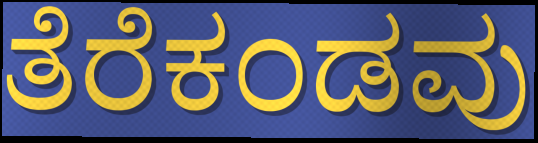
ತೆರೆಕಂಡವು